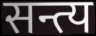
सन्त्य